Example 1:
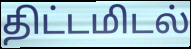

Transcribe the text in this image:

திட்டமிடல்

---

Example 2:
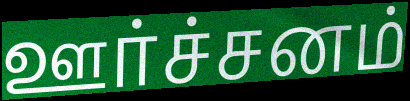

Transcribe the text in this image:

ஊர்ச்சனம்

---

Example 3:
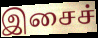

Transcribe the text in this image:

இசைச்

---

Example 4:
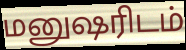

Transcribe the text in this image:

மனுஷரிடம்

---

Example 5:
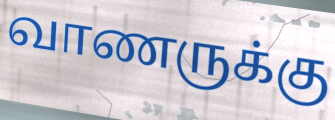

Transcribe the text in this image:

வாணருக்கு